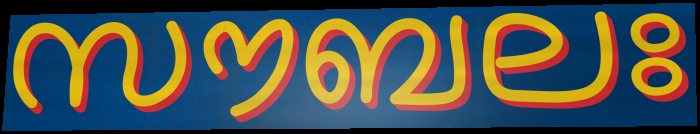
സൗബലഃ